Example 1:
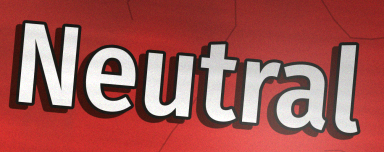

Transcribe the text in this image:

Neutral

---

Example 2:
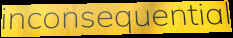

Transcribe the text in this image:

inconsequential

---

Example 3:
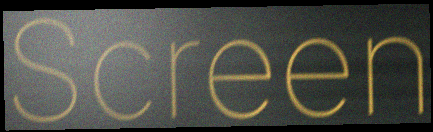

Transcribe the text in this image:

Screen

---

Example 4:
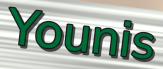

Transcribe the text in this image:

Younis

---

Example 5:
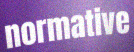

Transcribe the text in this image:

normative